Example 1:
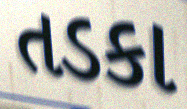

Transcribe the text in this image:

તડકા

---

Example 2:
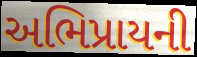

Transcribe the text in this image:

અભિપ્રાયની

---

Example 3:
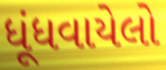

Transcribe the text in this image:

ધૂંધવાયેલો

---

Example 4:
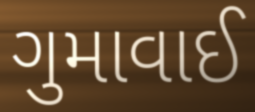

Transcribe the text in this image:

ગુમાવાઈ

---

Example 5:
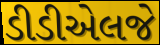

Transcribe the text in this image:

ડીડીએલજે